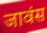
जावंस